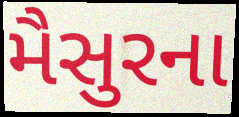
મૈસુરના